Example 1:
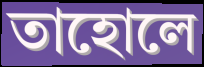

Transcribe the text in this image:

তাহোলে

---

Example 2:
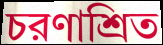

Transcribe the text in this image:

চরণাশ্রিত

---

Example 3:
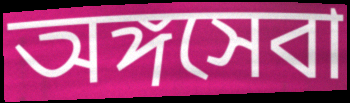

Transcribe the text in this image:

অঙ্গসেবা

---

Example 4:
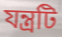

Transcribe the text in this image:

যন্ত্রটি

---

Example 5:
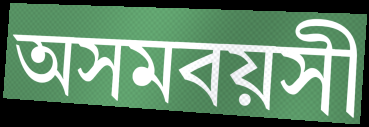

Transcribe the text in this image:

অসমবয়সী